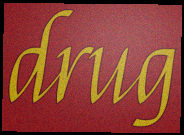
drug